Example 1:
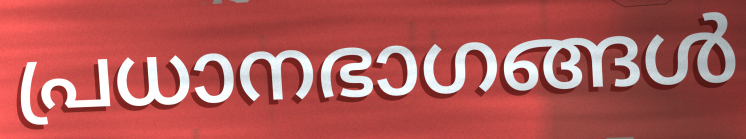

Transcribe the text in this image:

പ്രധാനഭാഗങ്ങൾ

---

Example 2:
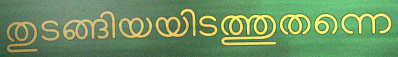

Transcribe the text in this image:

തുടങ്ങിയയിടത്തുതന്നെ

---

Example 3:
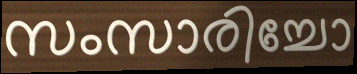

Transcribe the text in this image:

സംസാരിച്ചോ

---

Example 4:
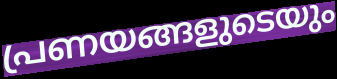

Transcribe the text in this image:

പ്രണയങ്ങളുടെയും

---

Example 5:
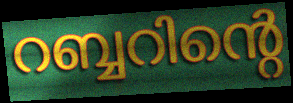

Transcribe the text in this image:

റബ്ബറിന്റെ